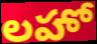
లహో